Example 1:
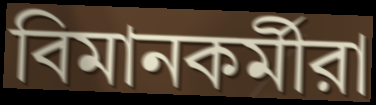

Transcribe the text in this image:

বিমানকর্মীরা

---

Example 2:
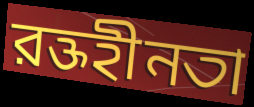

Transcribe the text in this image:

রক্তহীনতা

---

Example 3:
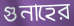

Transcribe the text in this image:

গুনাহের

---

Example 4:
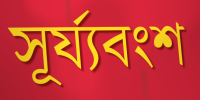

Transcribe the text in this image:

সূর্য্যবংশ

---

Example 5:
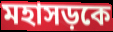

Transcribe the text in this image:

মহাসড়কে